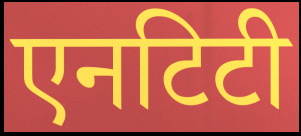
एनटिटी